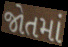
જોતમાં